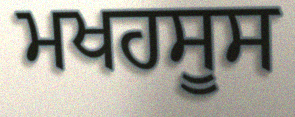
ਮਖਹਸੂਸ